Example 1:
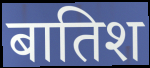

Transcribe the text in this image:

बातिश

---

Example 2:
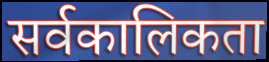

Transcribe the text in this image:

सर्वकालिकता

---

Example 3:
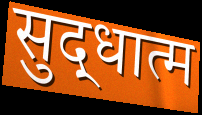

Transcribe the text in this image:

सुद्धात्म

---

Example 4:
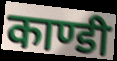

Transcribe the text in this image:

काण्डी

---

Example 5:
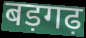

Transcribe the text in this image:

बड़गढ़